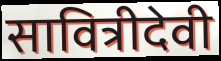
सावित्रीदेवी